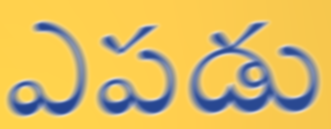
ఎపడు